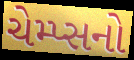
ચેમ્પ્સનો